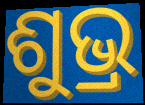
ଶୁଭ୍ର